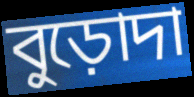
বুড়োদা